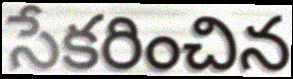
సేకరించిన